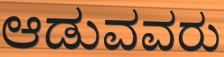
ಆಡುವವರು